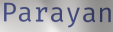
Parayan